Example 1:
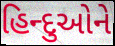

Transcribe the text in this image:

હિન્દુઓને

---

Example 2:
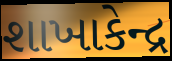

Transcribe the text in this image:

શાખાકેન્દ્ર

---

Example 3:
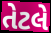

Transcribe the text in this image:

તેટલે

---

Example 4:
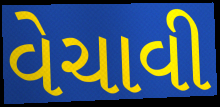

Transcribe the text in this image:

વેચાવી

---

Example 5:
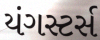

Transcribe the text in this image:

યંગસ્ટર્સ